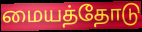
மையத்தோடு